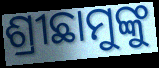
ଶ୍ରୀଛାମୁଙ୍କୁ